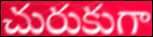
చురుకుగా